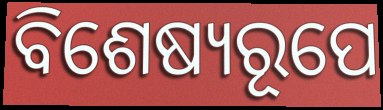
ବିଶେଷ୍ୟରୂପେ